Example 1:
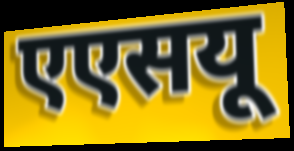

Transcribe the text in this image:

एएसयू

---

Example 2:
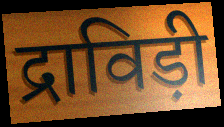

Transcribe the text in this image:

द्राविड़ी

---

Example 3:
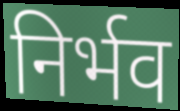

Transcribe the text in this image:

निर्भव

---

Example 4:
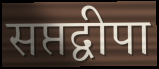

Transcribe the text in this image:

सप्तद्वीपा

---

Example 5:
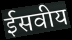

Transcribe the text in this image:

ईसवीय